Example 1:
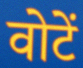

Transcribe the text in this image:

वोटें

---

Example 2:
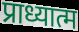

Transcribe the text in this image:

प्राध्यात्म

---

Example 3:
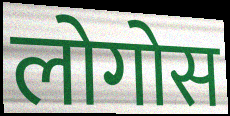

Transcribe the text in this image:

लोगोस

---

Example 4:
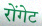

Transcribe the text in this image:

रोंगेट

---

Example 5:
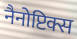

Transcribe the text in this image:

नैनोप्टिक्स